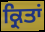
ਕ੍ਰਿਤਾਂ